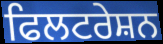
ਫਿਲਟਰੇਸ਼ਨ